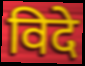
विदे